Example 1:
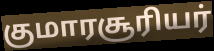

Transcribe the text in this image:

குமாரசூரியர்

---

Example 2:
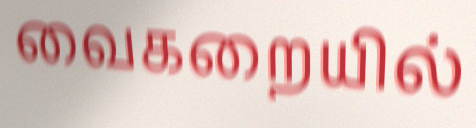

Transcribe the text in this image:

வைகறையில்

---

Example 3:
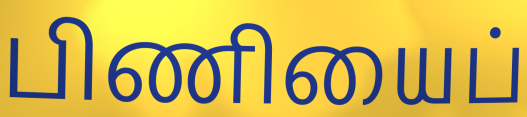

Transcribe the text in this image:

பிணியைப்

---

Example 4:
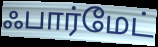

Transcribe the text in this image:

ஃபார்மேட்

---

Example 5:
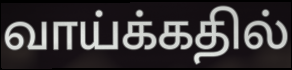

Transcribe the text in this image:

வாய்க்கதில்